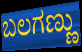
ಬಲಗಣ್ಣು